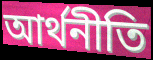
আর্থনীতি